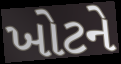
ખોટને